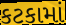
કટકામાં